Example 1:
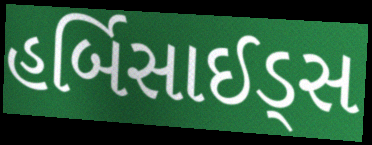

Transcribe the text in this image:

હર્બિસાઈડ્સ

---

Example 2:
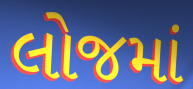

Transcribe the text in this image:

લોજમાં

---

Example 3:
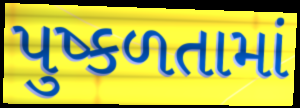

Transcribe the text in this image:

પુષ્કળતામાં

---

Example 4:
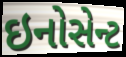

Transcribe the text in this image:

ઇનોસેન્ટ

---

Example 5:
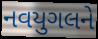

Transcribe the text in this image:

નવયુગલને